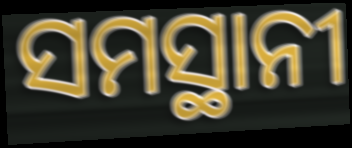
ସମସ୍ଥାନୀ